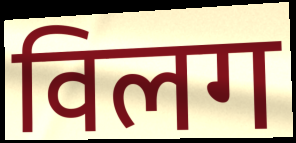
विलग